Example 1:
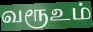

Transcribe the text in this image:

வரூஉம்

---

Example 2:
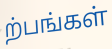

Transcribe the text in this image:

ற்பங்கள்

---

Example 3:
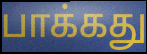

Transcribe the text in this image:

பாக்கது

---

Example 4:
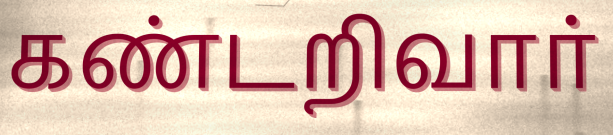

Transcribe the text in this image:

கண்டறிவார்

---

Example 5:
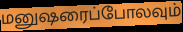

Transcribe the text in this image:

மனுஷரைப்போலவும்